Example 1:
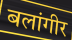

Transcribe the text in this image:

बलांगीर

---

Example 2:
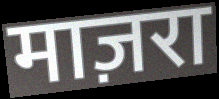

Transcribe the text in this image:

माज़रा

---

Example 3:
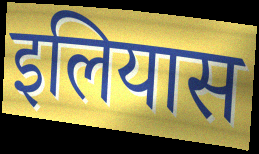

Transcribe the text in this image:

इलियास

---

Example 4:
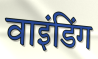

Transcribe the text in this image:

वाइंडिंग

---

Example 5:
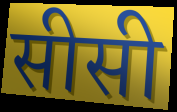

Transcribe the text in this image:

सीसी